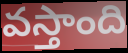
వస్తాంది